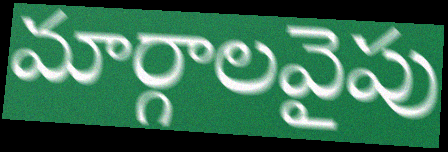
మార్గాలవైపు